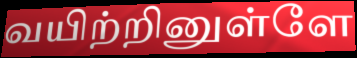
வயிற்றினுள்ளே